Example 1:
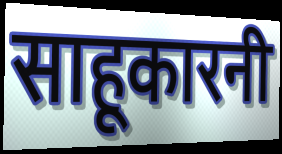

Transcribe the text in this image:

साहूकारनी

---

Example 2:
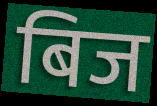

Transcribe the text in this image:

बिज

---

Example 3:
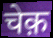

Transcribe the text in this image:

चेक़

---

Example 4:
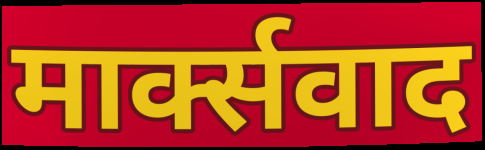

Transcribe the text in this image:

मार्क्सवाद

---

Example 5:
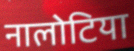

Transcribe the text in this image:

नालोटिया